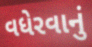
વધેરવાનું